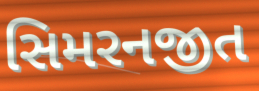
સિમરનજીત